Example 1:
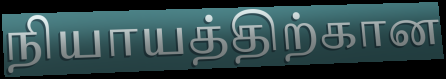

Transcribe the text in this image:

நியாயத்திற்கான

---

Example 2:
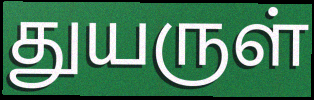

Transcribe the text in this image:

துயருள்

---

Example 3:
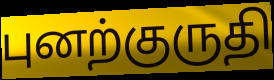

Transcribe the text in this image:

புனற்குருதி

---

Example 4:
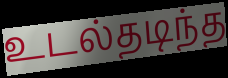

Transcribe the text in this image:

உடல்தடிந்த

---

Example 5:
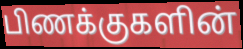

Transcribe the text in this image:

பிணக்குகளின்